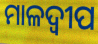
ମାଳଦ୍ବୀପ